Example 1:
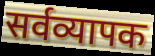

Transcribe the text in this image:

सर्वव्यापक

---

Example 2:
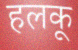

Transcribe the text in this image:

हलकू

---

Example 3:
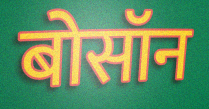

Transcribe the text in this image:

बोसॉन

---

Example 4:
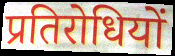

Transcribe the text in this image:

प्रतिरोधियों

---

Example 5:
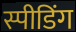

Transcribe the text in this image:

स्‍पीडिंग